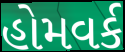
હોમવર્ક